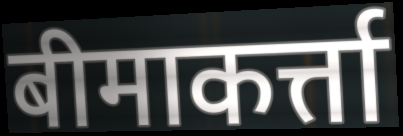
बीमाकर्त्ता